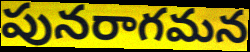
పునరాగమన